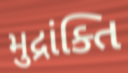
મુદ્રાંક્તિ